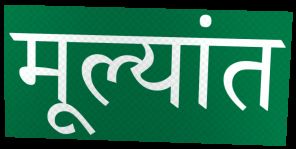
मूल्यांत